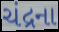
ચંદ્રના